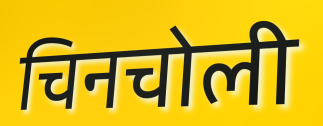
चिनचोली